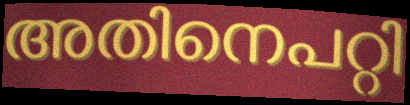
അതിനെപറ്റി